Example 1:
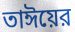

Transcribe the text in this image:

তাঈয়ের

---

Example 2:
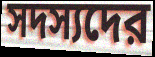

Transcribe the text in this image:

সদস্যদের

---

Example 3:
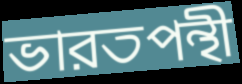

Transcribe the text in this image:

ভারতপন্থী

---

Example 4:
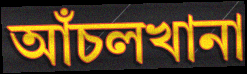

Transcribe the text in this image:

আঁচলখানা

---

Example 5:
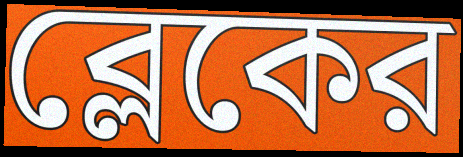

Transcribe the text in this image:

ব্লেকের